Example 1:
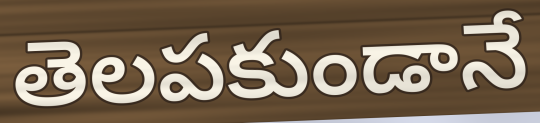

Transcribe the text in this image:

తెలపకుండానే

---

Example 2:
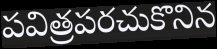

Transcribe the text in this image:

పవిత్రపరచుకొనిన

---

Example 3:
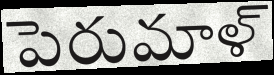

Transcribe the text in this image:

పెరుమాళ్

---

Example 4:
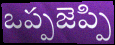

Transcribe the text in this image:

ఒప్పజెప్పి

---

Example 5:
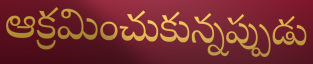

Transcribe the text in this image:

ఆక్రమించుకున్నప్పుడు